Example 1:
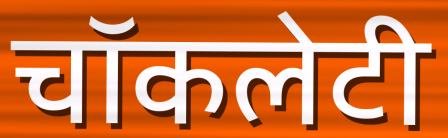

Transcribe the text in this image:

चॉकलेटी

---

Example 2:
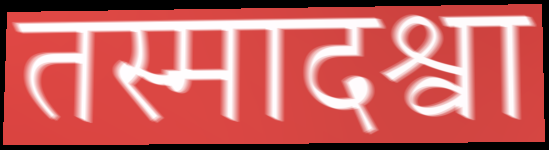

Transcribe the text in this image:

तस्मादश्वा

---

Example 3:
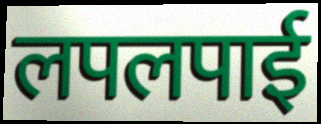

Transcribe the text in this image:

लपलपाई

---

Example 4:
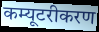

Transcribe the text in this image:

कम्यूटरीकरण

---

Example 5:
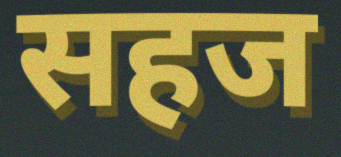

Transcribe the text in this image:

सहज